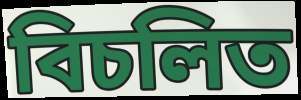
বিচলিত